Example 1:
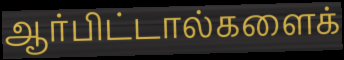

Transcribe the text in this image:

ஆர்பிட்டால்களைக்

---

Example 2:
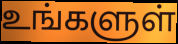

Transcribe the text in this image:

உங்களுள்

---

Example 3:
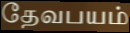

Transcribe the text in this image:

தேவபயம்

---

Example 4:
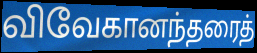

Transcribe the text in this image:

விவேகானந்தரைத்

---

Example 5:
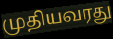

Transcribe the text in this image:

முதியவரது